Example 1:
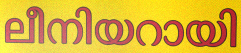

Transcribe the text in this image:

ലീനിയറായി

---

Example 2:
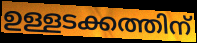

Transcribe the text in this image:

ഉള്ളടക്കത്തിന്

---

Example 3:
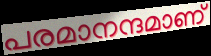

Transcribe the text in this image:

പരമാനന്ദമാണ്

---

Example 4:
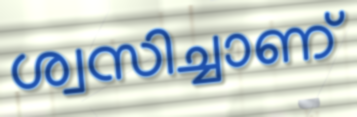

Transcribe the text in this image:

ശ്വസിച്ചാണ്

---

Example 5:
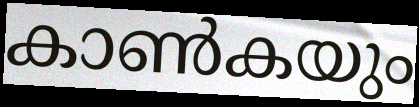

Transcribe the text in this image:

കാൺകയും